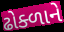
ઢોક્ળાને